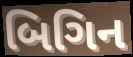
બિગિન